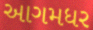
આગમધર